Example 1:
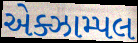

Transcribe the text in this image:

એક્ઝામ્પલ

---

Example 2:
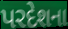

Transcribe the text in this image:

પરદેશના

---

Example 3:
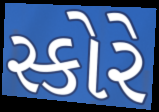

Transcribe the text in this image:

સ્કોરે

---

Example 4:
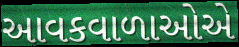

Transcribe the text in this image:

આવકવાળાઓએ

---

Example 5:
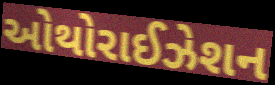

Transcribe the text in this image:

ઓથોરાઈઝેશન